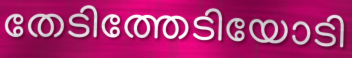
തേടിത്തേടിയോടി